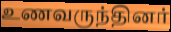
உணவருந்தினர்